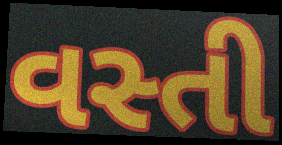
વસ્તી